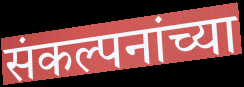
संकल्पनांच्या